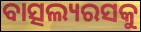
ବାତ୍ସଲ୍ୟରସକୁ